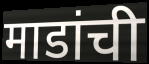
माडांची